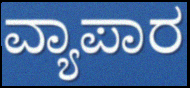
ವ್ಯಾಪಾರ